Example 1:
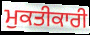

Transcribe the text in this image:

ਮੁਕਤੀਕਾਰੀ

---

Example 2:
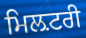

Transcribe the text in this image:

ਮਿਲ਼ਟਰੀ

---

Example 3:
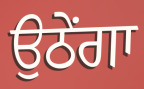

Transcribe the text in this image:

ਉਠੇਂਗਾ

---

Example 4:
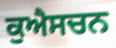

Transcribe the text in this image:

ਕੁਐਸਚਨ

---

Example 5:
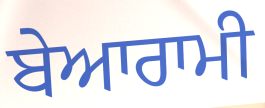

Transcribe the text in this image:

ਬੇਆਰਾਮੀ